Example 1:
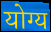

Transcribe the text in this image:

योग्य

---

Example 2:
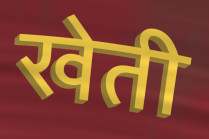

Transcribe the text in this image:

खेती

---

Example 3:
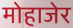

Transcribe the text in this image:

मोहाजेर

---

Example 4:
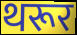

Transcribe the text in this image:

थरूर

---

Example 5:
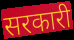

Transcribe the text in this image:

सरकारी